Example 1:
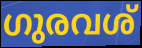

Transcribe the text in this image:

ഗുരവശ്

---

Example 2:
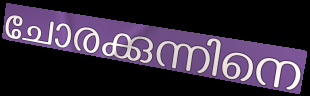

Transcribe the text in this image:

ചോരക്കുന്നിനെ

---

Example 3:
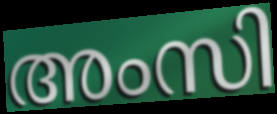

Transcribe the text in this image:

അംസി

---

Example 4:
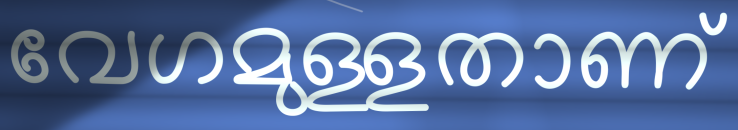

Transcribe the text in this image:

വേഗമുള്ളതാണ്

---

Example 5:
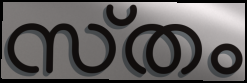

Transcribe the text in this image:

സ്‌തം